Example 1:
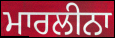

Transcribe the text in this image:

ਮਾਰਲੀਨਾ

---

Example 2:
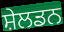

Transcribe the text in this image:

ਸ਼ੇਲਡਨ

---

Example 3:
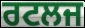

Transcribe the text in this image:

ਰਟਲਜ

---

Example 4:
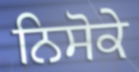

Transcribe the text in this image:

ਨਿਸੋਕੇ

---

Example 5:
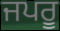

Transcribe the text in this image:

ਜਪਰੂ